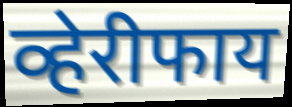
व्हेरीफाय